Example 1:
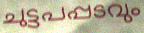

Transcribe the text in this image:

ചുട്ടപപ്പടവും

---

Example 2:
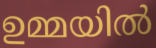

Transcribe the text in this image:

ഉമ്മയിൽ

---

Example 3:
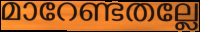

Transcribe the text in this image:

മാറേണ്ടതല്ലേ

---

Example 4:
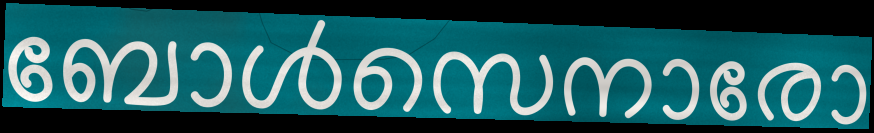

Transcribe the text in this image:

ബോൾസെനാരോ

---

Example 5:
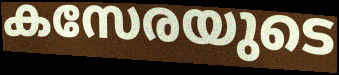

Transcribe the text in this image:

കസേരയുടെ